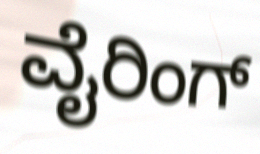
ವೈರಿಂಗ್